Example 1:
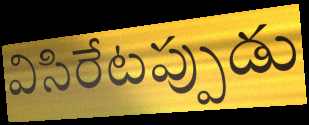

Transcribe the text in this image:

విసిరేటప్పుడు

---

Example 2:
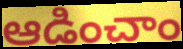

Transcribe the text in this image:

ఆడించాం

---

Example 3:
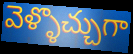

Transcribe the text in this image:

వెళ్ళొచ్చుగా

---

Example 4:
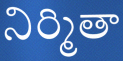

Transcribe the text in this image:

నిర్మితా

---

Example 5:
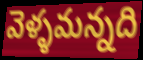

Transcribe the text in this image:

వెళ్ళమన్నది